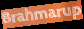
Brahmarup